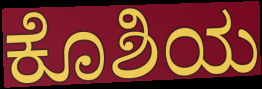
ಕೊಶಿಯ